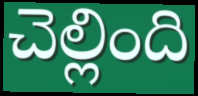
చెల్లింది